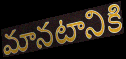
మానటానికి